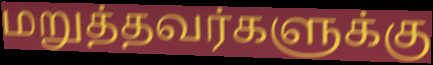
மறுத்தவர்களுக்கு